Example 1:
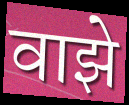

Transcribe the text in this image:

वाझे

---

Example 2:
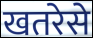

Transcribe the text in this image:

खतरेसे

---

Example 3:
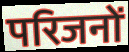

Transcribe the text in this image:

परिजनों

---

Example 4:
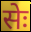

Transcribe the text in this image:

सेः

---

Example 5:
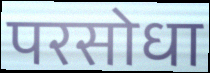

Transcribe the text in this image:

परसोधा